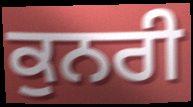
ਕੁਨਰੀ